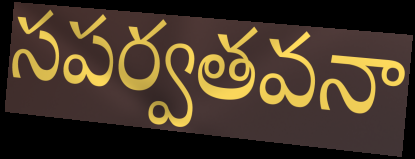
సపర్వతవనా